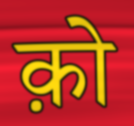
क़ो